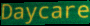
Daycare